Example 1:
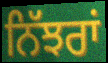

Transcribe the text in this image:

ਨਿੱਝਰਾਂ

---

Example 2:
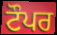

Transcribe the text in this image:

ਟੌਪਰ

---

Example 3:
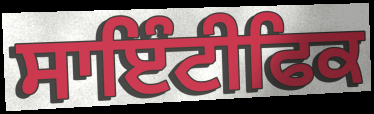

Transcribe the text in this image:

ਸਾਇੰਟੀਫਿਕ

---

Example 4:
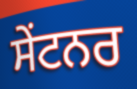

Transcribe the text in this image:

ਸੇਂਟਨਰ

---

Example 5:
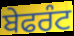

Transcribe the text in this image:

ਬੇਫਰੰਟ